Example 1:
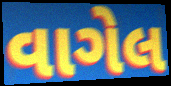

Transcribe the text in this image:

વાગેલ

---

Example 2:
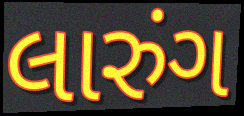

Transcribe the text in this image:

લારુંગ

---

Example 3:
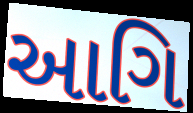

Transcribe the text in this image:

આગિ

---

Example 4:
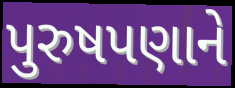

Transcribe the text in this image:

પુરુષપણાને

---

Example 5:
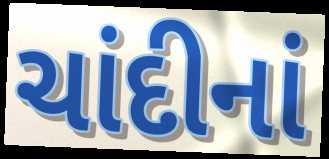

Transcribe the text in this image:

ચાંદીનાં